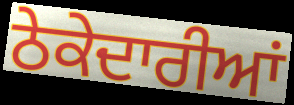
ਠੇਕੇਦਾਰੀਆਂ